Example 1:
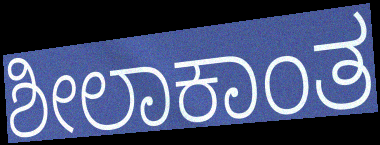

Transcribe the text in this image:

ಶೀಲಾಕಾಂತ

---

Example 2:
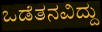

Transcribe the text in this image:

ಒಡೆತನವಿದ್ದು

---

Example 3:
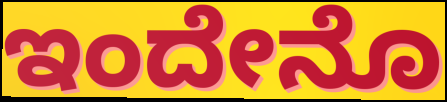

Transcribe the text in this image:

ಇಂದೇನೊ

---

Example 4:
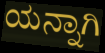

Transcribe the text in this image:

ಯನ್ನಾಗಿ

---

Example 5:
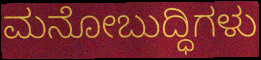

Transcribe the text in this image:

ಮನೋಬುದ್ಧಿಗಳು